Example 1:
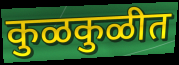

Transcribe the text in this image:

कुळकुळीत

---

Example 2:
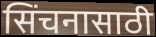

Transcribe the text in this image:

सिंचनासाठी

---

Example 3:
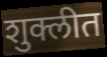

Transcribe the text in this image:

शुक्लीत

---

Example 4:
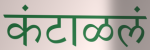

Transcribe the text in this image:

कंटाळलं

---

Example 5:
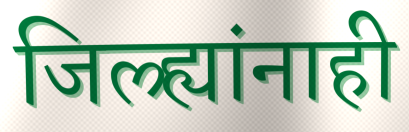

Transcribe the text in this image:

जिल्ह्यांनाही